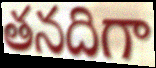
తనదిగా